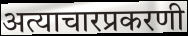
अत्याचारप्रकरणी